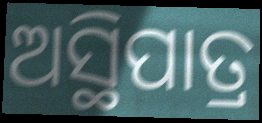
ଅସ୍ଥିପାତ୍ର